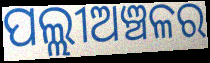
ପଲ୍ଲୀଅଞ୍ଚଳର